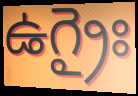
ఉగ్రైః